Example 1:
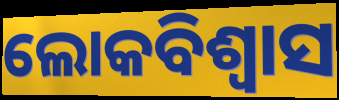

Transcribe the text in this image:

ଲୋକବିଶ୍ୱାସ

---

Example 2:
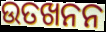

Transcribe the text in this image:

ଉତଖନନ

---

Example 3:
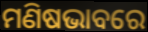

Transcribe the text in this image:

ମଣିଷଭାବରେ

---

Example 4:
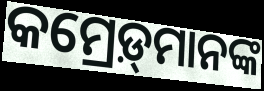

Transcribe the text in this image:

କମ୍ରେଡ଼୍‍ମାନଙ୍କ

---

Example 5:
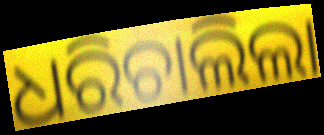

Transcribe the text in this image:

ଧରିଚାଲିଲା